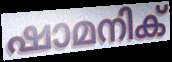
ഷാമനിക്